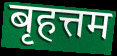
बृहत्तम